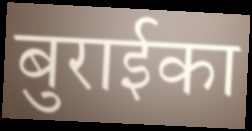
बुराईका